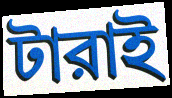
টারাই